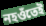
নহওঁতেই